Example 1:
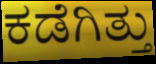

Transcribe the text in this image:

ಕಡೆಗಿತ್ತು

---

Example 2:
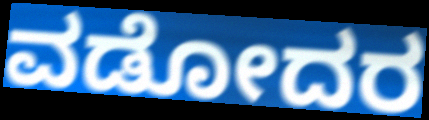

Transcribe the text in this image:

ವಡೋದರ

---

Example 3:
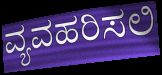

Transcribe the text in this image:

ವ್ಯವಹರಿಸಲಿ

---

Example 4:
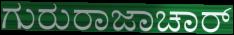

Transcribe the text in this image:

ಗುರುರಾಜಾಚಾರ್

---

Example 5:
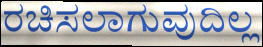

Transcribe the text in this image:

ರಚಿಸಲಾಗುವುದಿಲ್ಲ